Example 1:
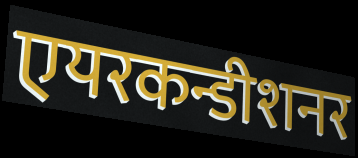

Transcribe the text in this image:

एयरकन्डीशनर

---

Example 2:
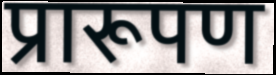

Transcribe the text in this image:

प्रारूपण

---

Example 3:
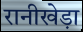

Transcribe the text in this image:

रानीखेड़ा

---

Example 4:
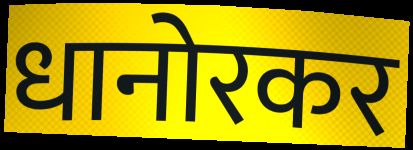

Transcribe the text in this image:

धानोरकर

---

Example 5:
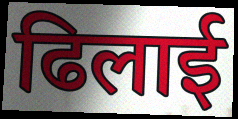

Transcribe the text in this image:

ढिलाई